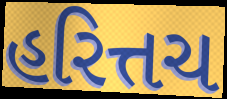
હરિત્તચ